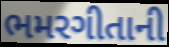
ભમરગીતાની